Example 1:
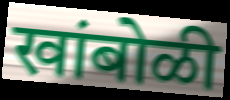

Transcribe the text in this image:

खांबोळी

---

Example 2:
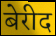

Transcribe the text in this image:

बेरीद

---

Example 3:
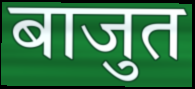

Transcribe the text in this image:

बाजुत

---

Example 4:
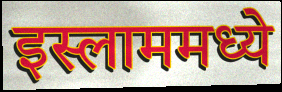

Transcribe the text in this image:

इस्लाममध्ये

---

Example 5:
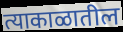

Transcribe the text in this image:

त्याकाळातील